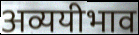
अव्ययीभाव